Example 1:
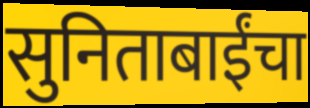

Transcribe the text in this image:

सुनिताबाईंचा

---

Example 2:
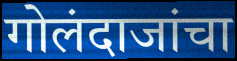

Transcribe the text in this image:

गोलंदाजांचा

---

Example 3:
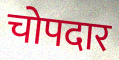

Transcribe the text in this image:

चोपदार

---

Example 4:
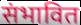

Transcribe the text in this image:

संभावित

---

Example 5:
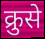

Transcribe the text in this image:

क्रुसे